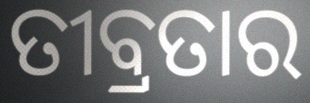
ତୀବ୍ରତାର